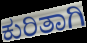
ಕುರಿತಾಗಿ